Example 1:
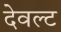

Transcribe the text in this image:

देवल्ट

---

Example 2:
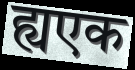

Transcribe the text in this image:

ह्यएक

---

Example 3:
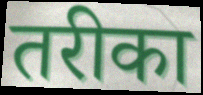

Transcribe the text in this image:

तरीका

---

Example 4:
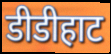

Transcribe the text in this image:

डीडीहाट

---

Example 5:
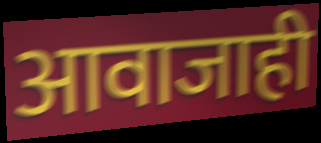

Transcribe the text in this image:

आवाजाही